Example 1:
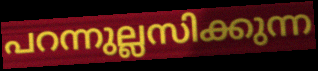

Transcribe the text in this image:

പറന്നുല്ലസിക്കുന്ന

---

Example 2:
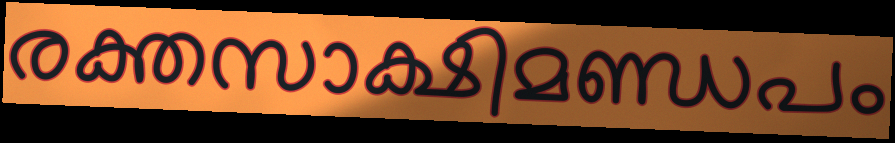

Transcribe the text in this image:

രക്തസാക്ഷിമണ്ഡപം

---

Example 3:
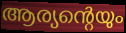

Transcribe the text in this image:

ആര്യന്റെയും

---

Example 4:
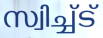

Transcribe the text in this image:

സ്വിച്ച്ട്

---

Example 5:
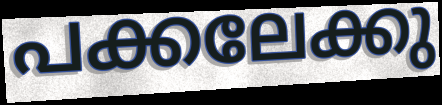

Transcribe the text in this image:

പക്കലേക്കു